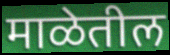
माळेतील